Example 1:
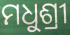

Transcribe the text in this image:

ମଧୁଶ୍ରୀ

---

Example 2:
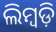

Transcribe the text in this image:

ଲିମ୍ବଡ଼ି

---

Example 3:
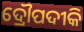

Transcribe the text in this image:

ଦ୍ରୌପଦୀକି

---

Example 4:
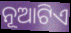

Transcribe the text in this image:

ନୂଆଟିଏ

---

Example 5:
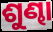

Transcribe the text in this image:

ଶୁଣ୍ଢା